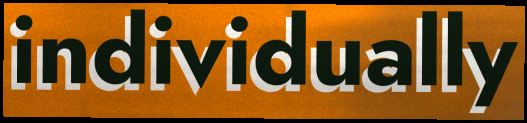
individually